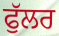
ਫੁੱਲਰ